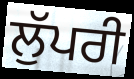
ਲੁੱਪਰੀ